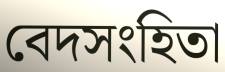
বেদসংহিতা